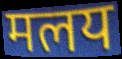
मलय